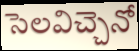
సెలవిచ్చెనో